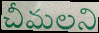
చీమలని